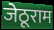
जेठूराम